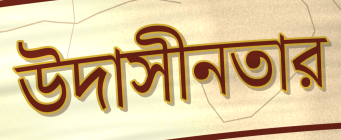
উদাসীনতার